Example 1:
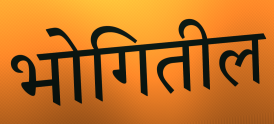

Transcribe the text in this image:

भोगितील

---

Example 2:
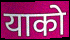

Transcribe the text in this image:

याको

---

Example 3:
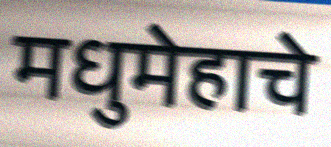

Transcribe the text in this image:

मधुमेहाचे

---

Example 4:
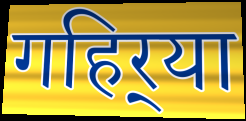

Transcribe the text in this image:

गहिर्या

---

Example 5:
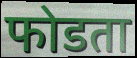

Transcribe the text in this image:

फोडता